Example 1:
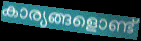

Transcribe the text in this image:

കാര്യങ്ങളൊണ്ട്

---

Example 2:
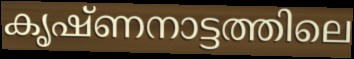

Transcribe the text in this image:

കൃഷ്ണനാട്ടത്തിലെ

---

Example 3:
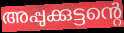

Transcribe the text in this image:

അപ്പുക്കുട്ടന്റെ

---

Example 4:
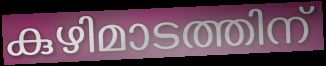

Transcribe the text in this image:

കുഴിമാടത്തിന്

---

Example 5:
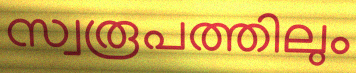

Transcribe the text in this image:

സ്വരൂപത്തിലും